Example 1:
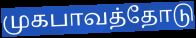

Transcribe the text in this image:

முகபாவத்தோடு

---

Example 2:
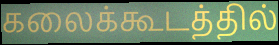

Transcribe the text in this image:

கலைக்கூடத்தில்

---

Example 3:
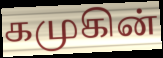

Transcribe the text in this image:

கமுகின்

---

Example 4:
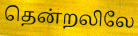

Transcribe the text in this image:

தென்றலிலே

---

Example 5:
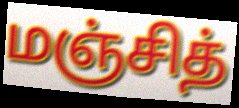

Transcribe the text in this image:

மஞ்சித்